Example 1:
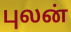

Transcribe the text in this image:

புலன்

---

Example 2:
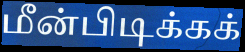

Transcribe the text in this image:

மீன்பிடிக்கக்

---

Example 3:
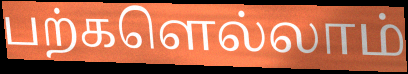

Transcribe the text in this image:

பற்களெல்லாம்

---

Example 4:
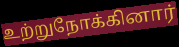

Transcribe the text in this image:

உற்றுநோக்கினார்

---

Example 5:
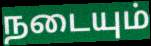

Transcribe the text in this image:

நடையும்